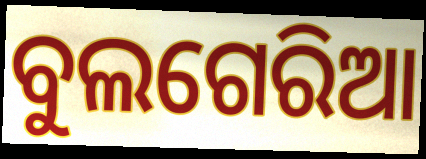
ବୁଲଗେରିଆ